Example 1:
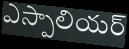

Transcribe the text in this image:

ఎస్పాలియర్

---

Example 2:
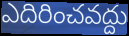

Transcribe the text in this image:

ఎదిరించవద్దు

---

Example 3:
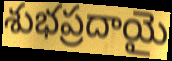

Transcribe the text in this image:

శుభప్రదాయై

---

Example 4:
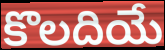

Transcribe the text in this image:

కొలదియే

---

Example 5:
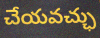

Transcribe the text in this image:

చేయవచ్ఛు